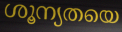
ശൂന്യതയെ